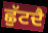
ਛੁੱਟਦੈ